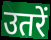
उतरें